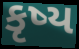
કૃષ્ય